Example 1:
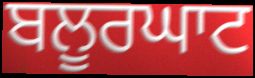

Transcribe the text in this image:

ਬਲੂਰਘਾਟ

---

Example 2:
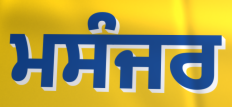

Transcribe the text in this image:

ਮਸੰਜਰ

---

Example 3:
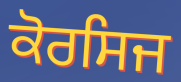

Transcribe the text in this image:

ਕੋਰਸਿਜ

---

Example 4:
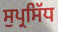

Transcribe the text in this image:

ਸੁਪ੍ਰਸਿੱਧ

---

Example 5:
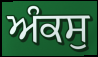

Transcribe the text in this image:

ਅੰਕਸੁ